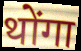
थोंगा